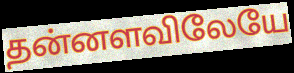
தன்னளவிலேயே